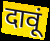
दावूं